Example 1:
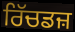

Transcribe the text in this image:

ਰਿੱਚਡਜ਼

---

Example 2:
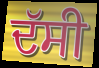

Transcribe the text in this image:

ਦੱਸੀ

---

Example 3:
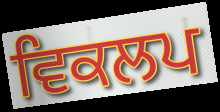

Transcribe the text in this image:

ਵਿਕਲਪ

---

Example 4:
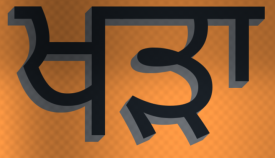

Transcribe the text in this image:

ਖੜਾ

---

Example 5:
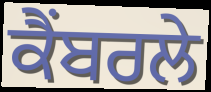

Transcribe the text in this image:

ਕੈਂਬਰਲੇ